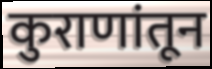
कुराणांतून